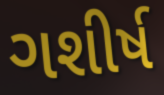
ગશીર્ષ